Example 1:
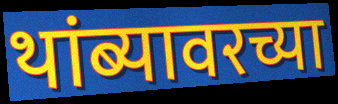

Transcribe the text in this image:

थांब्यावरच्या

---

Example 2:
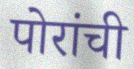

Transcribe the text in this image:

पोरांची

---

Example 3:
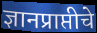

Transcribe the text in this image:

ज्ञानप्राप्तीचे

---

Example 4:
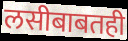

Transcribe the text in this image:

लसीबाबतही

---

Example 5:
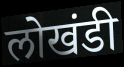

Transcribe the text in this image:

लोखंडी